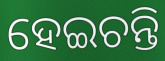
ହେଇଚନ୍ତି